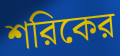
শরিকের